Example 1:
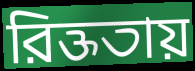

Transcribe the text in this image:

রিক্ততায়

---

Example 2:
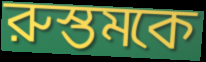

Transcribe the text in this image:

রুস্তমকে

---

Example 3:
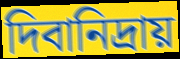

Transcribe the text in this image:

দিবানিদ্রায়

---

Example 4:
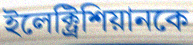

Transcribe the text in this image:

ইলেক্ট্রিশিয়ানকে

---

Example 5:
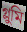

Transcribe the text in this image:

গ্লুমি